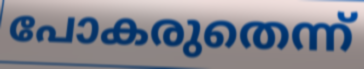
പോകരുതെന്ന്